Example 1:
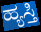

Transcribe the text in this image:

ಹ್ಯಸ್ತಿ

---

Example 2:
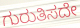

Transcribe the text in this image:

ಗುರುತಿಸದೇ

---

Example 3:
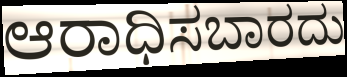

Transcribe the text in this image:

ಆರಾಧಿಸಬಾರದು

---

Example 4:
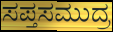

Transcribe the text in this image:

ಸಪ್ತಸಮುದ್ರ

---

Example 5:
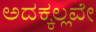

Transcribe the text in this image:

ಅದಕ್ಕಲ್ಲವೇ